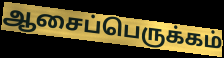
ஆசைப்பெருக்கம்